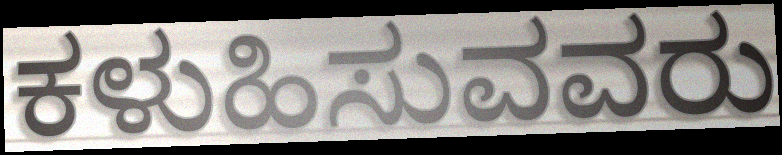
ಕಳುಹಿಸುವವರು